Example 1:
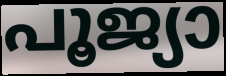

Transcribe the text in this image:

പൂജ്യാ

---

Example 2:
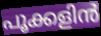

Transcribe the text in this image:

പൂക്കളിൻ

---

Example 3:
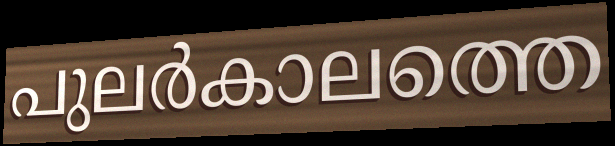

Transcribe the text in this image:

പുലർകാലത്തെ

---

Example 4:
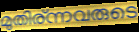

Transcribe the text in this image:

മുതിര്ന്നവരുടെ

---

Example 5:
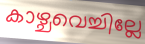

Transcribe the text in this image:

കാഴ്ചവെച്ചില്ലേ